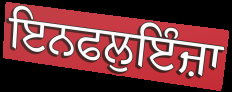
ਇਨਫਲੁਇੰਜ਼ਾ